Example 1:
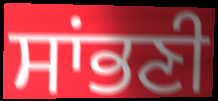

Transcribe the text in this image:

ਸਾਂਭਣੀ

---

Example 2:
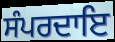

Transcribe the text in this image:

ਸੰਪਰਦਾਇ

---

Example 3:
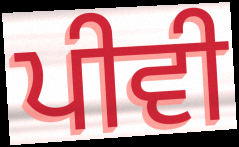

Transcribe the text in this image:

ਪੀਵੀ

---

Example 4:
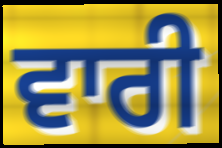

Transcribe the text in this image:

ਵਾਰੀ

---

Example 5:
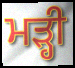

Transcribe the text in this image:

ਮੜ੍ਹੀ